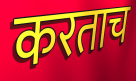
करताच